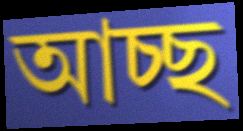
আচ্ছ